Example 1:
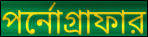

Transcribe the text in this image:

পর্নোগ্রাফার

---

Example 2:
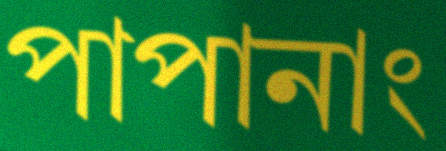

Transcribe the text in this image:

পাপানাং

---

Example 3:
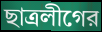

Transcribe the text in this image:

ছাত্রলীগের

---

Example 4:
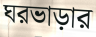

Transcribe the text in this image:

ঘরভাড়ার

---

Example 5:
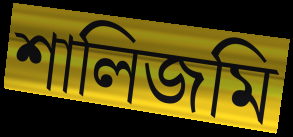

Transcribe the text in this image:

শালিজমি